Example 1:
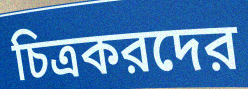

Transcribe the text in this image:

চিত্রকরদের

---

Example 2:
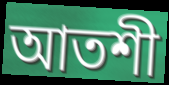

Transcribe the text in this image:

আতশী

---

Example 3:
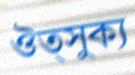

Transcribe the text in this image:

ঔত্সুক্য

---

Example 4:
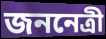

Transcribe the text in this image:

জননেত্রী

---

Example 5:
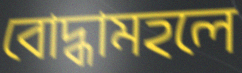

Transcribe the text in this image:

বোদ্ধামহলে